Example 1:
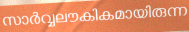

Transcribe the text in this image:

സാർവ്വലൗകികമായിരുന്ന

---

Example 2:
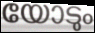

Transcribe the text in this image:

യോടും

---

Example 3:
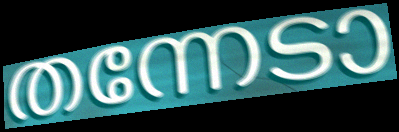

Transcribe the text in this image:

തന്നേടാ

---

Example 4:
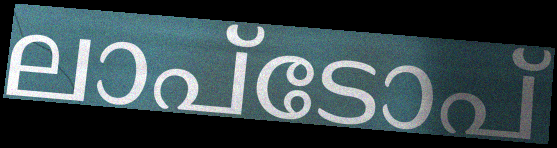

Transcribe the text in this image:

ലാപ്ടോപ്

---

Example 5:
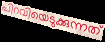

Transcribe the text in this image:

പിറവിയെടുക്കുന്നത്